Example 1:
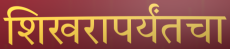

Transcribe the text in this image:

शिखरापर्यंतचा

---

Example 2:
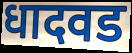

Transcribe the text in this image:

धादवड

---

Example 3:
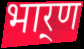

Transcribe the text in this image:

भार्ण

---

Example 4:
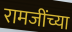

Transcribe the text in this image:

रामजींच्या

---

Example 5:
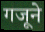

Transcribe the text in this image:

गजूने